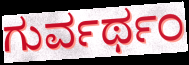
ಗುರ್ವರ್ಥಂ